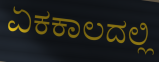
ಏಕಕಾಲದಲ್ಲಿ